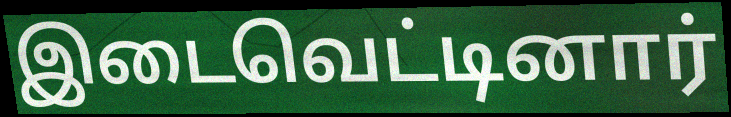
இடைவெட்டினார்